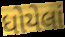
ધોયેલાં